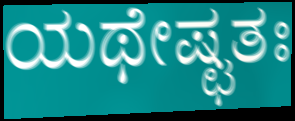
ಯಥೇಷ್ಟತಃ